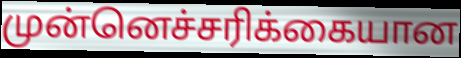
முன்னெச்சரிக்கையான